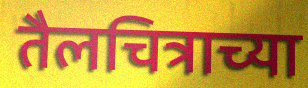
तैलचित्राच्या